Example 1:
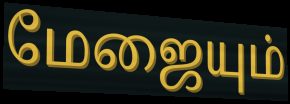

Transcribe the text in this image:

மேஜையும்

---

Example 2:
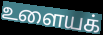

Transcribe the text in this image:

உளையக்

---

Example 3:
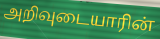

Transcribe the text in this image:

அறிவுடையாரின்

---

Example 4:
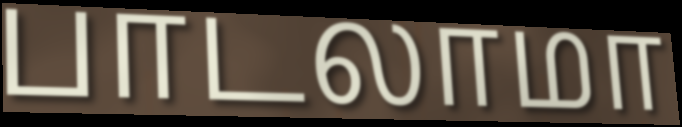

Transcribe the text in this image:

பாடலாமா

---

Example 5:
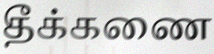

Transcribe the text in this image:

தீக்கணை